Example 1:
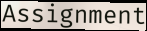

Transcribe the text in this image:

Assignment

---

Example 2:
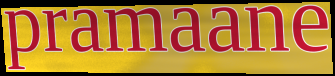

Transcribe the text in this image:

pramaane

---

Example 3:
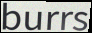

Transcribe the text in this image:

burrs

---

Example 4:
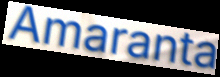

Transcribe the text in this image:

Amaranta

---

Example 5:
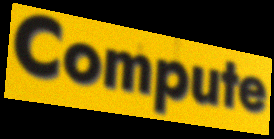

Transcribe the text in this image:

Compute